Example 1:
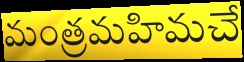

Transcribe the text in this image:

మంత్రమహిమచే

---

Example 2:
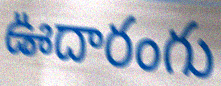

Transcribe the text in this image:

ఊదారంగు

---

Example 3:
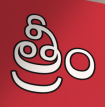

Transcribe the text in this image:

త్రీం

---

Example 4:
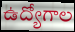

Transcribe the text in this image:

ఉద్యోగాల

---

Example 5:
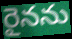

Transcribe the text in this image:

రైనను